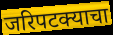
जरिपटक्याचा